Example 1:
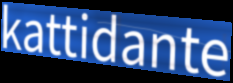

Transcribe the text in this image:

kattidante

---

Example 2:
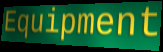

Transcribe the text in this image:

Equipment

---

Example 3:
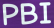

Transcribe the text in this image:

PBI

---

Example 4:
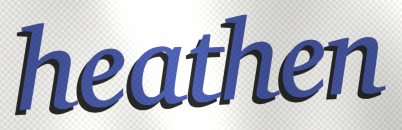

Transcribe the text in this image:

heathen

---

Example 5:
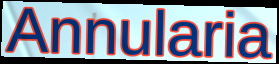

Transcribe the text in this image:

Annularia